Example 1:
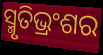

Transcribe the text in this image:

ସ୍ମୃତିଭ୍ରଂଶର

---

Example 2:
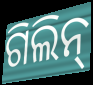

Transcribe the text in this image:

ଗିଲିନ୍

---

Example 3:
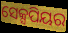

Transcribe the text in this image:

ସେକ୍ସପିୟର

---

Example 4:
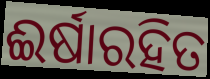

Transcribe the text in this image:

ଈର୍ଷାରହିତ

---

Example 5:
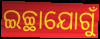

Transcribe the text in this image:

ଇଚ୍ଛାଯୋଗୁଁ